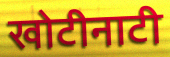
खोटीनाटी